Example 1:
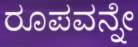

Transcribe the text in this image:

ರೂಪವನ್ನೇ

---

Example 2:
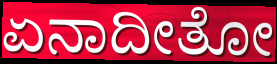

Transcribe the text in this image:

ಏನಾದೀತೋ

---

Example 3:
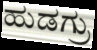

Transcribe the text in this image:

ಹುಡಗ್ರು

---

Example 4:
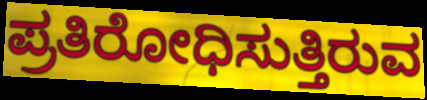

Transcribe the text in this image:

ಪ್ರತಿರೋಧಿಸುತ್ತಿರುವ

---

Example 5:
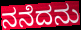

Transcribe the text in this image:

ನನೆದನು